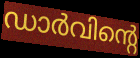
ഡാർവിന്റെ